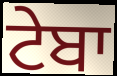
ਟੇਬਾ